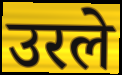
उरले